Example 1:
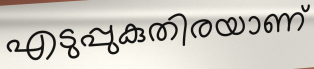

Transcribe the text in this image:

എടുപ്പുകുതിരയാണ്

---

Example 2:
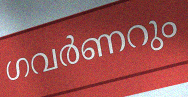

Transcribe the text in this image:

ഗവർണറും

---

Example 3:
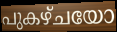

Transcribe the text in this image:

പുകഴ്ചയോ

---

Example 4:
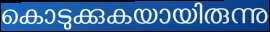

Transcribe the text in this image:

കൊടുക്കുകയായിരുന്നു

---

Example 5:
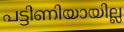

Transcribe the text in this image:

പട്ടിണിയായില്ല